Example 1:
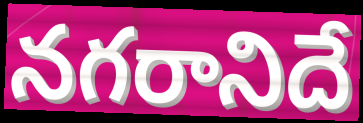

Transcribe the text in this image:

నగరానిదే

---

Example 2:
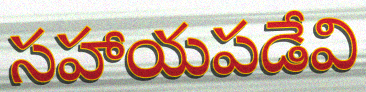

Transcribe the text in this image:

సహాయపడేవి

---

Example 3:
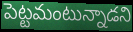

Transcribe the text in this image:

పెట్టమంటున్నాడని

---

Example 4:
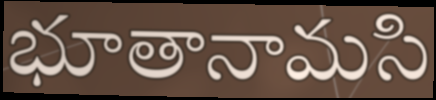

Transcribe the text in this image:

భూతానామసి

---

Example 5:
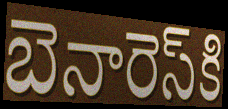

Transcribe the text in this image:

బెనారెస్‌కి